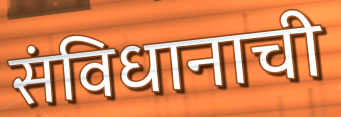
संविधानाची